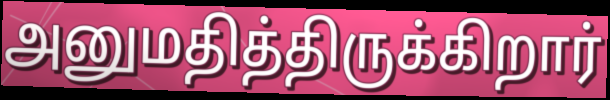
அனுமதித்திருக்கிறார்